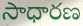
సాధారణ